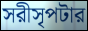
সরীসৃপটার